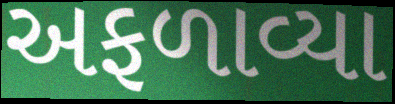
અફળાવ્યા